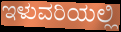
ಇಳುವರಿಯಲ್ಲಿ